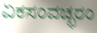
ಏಕಸಂವಚ್ಛರಂ